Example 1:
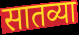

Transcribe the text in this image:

सातव्या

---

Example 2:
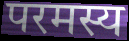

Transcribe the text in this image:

परमस्य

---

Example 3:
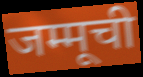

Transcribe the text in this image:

जम्मूची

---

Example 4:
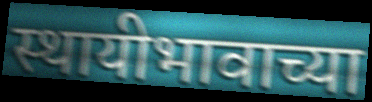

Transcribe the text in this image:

स्थायीभावाच्या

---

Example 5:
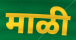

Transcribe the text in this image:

माळी